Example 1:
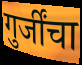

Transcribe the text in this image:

गुर्जींचा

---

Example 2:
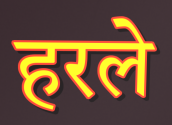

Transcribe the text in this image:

हरले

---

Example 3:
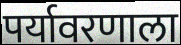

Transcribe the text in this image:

पर्यावरणाला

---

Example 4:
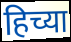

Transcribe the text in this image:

हिच्या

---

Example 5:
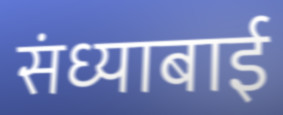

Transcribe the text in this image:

संध्याबाई